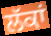
ਲੱਕਾਂ